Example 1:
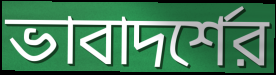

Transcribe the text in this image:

ভাবাদর্শের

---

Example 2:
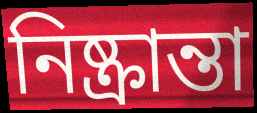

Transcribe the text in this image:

নিষ্ক্রান্তা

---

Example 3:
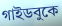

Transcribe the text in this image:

গাইডবুকে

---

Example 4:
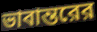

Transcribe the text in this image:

ভাবান্তরের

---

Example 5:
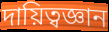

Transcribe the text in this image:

দায়িত্বজ্ঞান